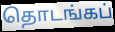
தொடங்கப்